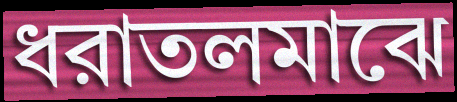
ধরাতলমাঝে